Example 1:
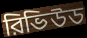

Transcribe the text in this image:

রিভিউড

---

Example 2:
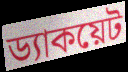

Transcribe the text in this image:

ড্যাকয়েট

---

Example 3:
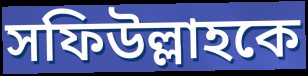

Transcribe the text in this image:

সফিউল্লাহকে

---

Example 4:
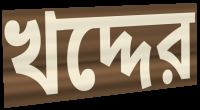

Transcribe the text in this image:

খদ্দের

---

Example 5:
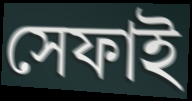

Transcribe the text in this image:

সেফাই